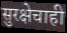
सुरक्षेचाही